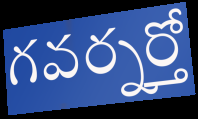
గవర్నర్తో